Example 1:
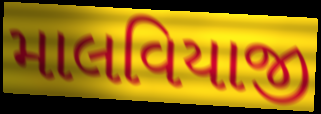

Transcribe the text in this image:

માલવિયાજી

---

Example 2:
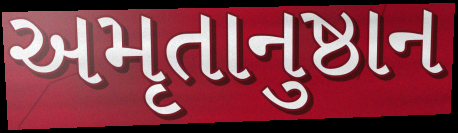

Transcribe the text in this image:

અમૃતાનુષ્ઠાન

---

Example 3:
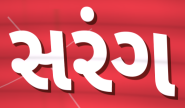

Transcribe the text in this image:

સરંગ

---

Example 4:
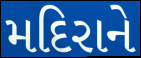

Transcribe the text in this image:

મદિરાને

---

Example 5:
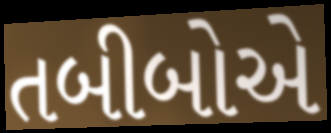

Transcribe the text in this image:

તબીબોએ